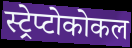
स्ट्रेप्टोकोकल